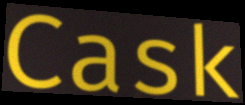
Cask